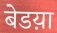
बेडय़ा